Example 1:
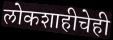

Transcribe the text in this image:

लोकशाहीचेही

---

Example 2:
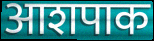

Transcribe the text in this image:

आशपाक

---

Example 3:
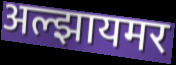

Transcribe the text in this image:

अल्झायमर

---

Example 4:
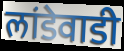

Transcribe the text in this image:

लांडेवाडी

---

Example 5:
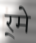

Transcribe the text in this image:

र्मे